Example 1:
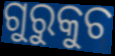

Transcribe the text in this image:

ଗୁରୁକୁଚ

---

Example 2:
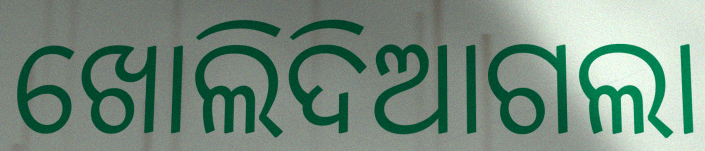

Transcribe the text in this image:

ଖୋଲିଦିଆଗଲା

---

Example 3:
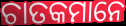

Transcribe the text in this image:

ଚାତକମାନେ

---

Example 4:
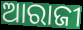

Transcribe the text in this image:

ଆରାଜୀ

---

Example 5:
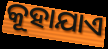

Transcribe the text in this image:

କୂହାଯାଏ